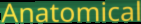
Anatomical